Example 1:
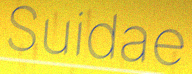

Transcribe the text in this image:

Suidae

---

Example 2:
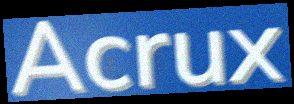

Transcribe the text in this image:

Acrux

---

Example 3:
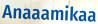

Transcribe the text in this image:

Anaaamikaa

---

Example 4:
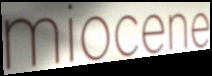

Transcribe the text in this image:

miocene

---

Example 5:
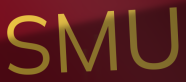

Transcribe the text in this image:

SMU